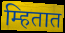
म्हितात